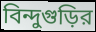
বিন্দুগুড়ির